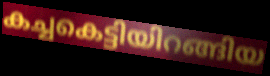
കച്ചകെട്ടിയിറങ്ങിയ